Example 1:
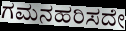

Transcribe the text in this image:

ಗಮನಹರಿಸದೇ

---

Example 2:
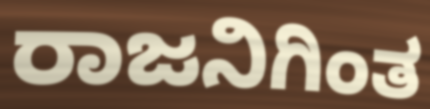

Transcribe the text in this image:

ರಾಜನಿಗಿಂತ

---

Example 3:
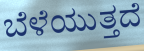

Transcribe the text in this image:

ಬೆಳೆಯುತ್ತದೆ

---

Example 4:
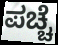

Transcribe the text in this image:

ಪಚ್ಚೆ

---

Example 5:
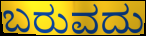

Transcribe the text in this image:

ಬರುವದು